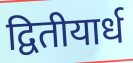
द्वितीयार्ध